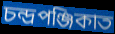
চন্দ্ৰপঞ্জিকাত